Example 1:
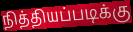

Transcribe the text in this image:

நித்தியப்படிக்கு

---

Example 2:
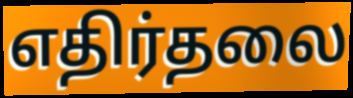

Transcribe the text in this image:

எதிர்தலை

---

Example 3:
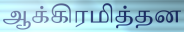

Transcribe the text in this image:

ஆக்கிரமித்தன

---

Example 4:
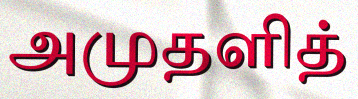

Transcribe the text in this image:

அமுதளித்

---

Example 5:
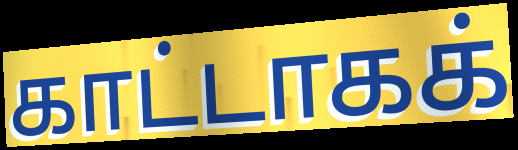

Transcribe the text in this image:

காட்டாகக்